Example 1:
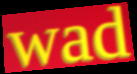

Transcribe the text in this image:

wad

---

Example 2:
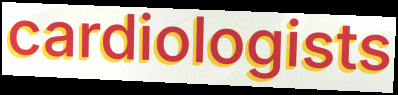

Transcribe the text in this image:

cardiologists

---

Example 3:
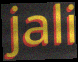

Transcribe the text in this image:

jali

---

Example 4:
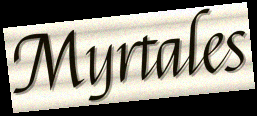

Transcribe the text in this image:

Myrtales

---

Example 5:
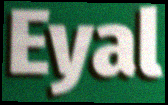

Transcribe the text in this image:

Eyal